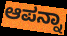
ಆಪನ್ನಾ